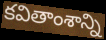
కవితాంశాన్ని